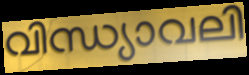
വിന്ധ്യാവലി